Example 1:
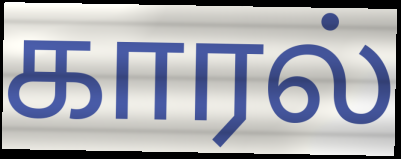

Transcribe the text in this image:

காரல்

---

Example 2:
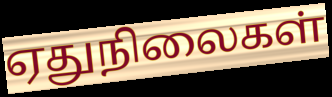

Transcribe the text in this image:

ஏதுநிலைகள்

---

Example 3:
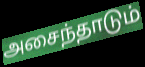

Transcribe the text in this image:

அசைந்தாடும்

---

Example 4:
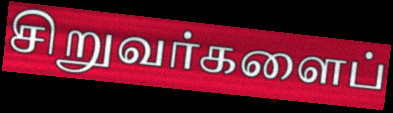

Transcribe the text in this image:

சிறுவர்களைப்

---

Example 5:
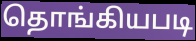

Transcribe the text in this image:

தொங்கியபடி